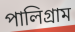
পালিগ্রাম